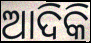
ଆଦିକି